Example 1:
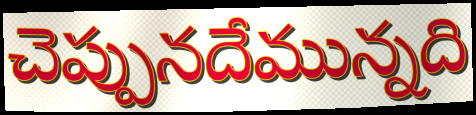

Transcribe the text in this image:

చెప్పునదేమున్నది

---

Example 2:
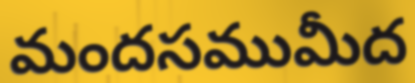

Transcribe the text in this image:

మందసముమీద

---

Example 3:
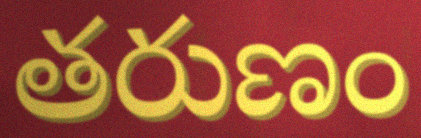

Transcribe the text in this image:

తరుణం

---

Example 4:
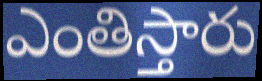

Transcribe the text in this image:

ఎంతిస్తారు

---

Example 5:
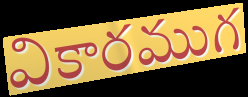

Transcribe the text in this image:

వికారముగ